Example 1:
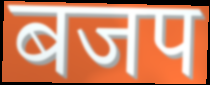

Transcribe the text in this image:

बजप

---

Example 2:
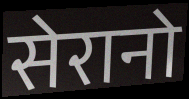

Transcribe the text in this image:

सेरानो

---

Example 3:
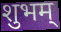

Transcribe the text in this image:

शुभम्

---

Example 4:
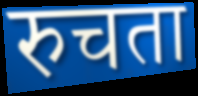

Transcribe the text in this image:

रुचता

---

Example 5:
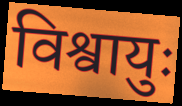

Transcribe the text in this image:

विश्वायुः